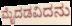
ಮೈದಡವಿದನು